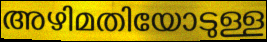
അഴിമതിയോടുള്ള